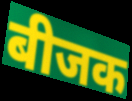
बीजक